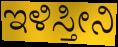
ಇಳಿಸ್ತೀನಿ